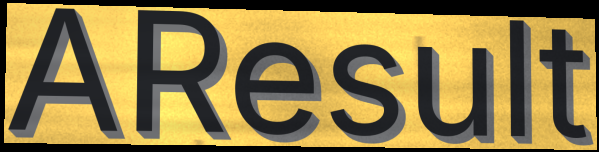
AResult